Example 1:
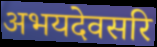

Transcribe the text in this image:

अभयदेवसरि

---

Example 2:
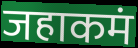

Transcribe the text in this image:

जहाकमं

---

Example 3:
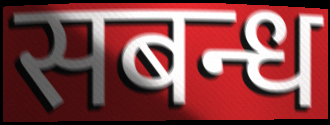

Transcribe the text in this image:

सबन्ध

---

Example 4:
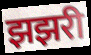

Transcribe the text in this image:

झझरी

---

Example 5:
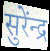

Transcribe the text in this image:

सुरेंन्द्र